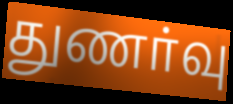
துணர்வு